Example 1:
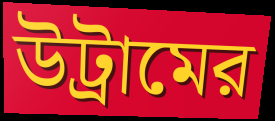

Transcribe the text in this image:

উট্রামের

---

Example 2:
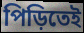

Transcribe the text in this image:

পিড়িতেই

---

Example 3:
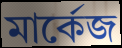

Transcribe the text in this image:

মার্কেজ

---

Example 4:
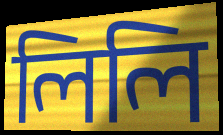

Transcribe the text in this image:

লিলি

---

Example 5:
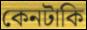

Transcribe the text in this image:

কেনটাকি